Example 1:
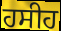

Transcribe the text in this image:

ਹਸੀਹ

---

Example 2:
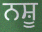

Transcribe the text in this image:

ਨਸ਼ੂ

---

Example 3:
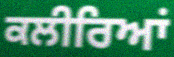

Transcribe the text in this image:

ਕਲੀਰਿਆਂ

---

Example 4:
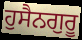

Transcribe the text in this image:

ਹੁਸੈਨਗੁਰੂ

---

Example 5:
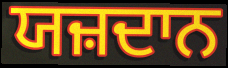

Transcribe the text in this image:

ਯਜ਼ਦਾਨ